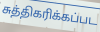
சுத்திகரிக்கப்பட